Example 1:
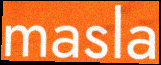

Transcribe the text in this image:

masla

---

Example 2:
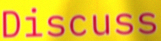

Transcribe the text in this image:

Discuss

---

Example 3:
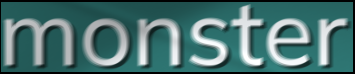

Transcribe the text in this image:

monster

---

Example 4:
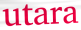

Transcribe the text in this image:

utara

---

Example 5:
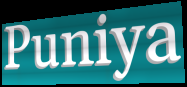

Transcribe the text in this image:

Puniya